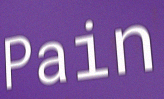
Pain